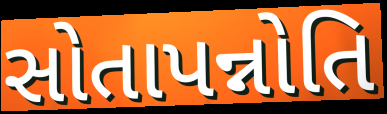
સોતાપન્નોતિ